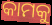
କାମକୁ